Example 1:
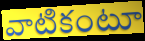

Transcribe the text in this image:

వాటికంటూ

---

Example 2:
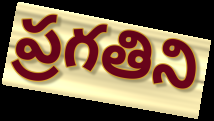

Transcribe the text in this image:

ప్రగతిని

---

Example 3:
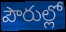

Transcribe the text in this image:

పౌరుల్లో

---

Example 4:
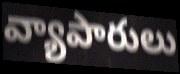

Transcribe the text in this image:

వ్యాపారులు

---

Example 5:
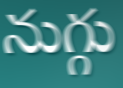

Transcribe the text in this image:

నుగ్గు